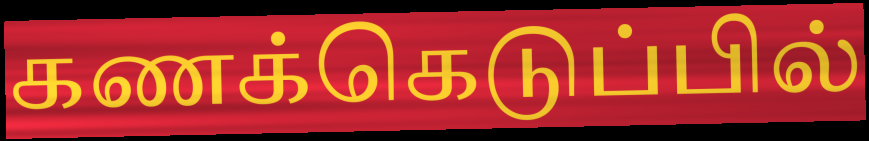
கணக்கெடுப்பில்